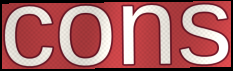
cons